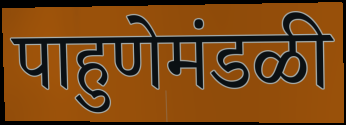
पाहुणेमंडळी